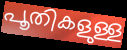
പൂതികളുള്ള